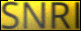
SNRI